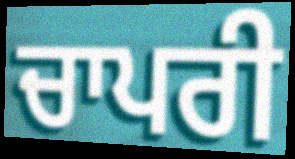
ਚਾਪਰੀ